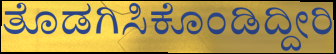
ತೊಡಗಿಸಿಕೊಂಡಿದ್ದೀರಿ